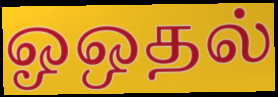
ஓஒதல்